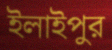
ইলাইপুর